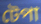
টেপা